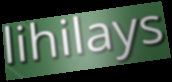
lihilays